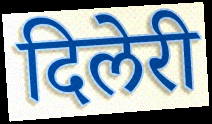
दिलेरी